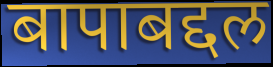
बापाबद्दल